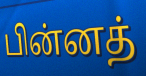
பின்னத்